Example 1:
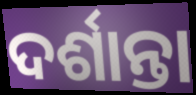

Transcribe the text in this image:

ଦର୍ଶାନ୍ତା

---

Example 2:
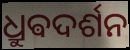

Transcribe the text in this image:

ଧ୍ରୁଵଦର୍ଶନ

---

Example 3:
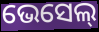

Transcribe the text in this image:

ଭେସେଲ୍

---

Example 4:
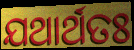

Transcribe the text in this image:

ଯଥାର୍ଥତଃ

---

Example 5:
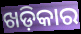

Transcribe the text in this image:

ଖଡ଼ିକାର